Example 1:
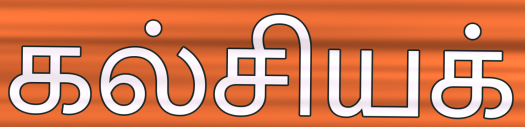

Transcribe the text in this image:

கல்சியக்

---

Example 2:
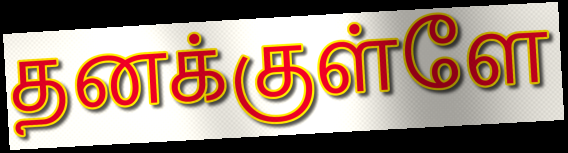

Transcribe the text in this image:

தனக்குள்ளே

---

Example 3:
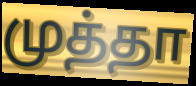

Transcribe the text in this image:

முத்தா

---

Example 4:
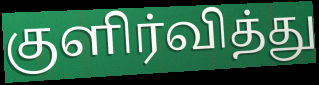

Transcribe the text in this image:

குளிர்வித்து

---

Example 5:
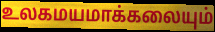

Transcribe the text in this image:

உலகமயமாக்கலையும்